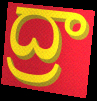
ద్రా